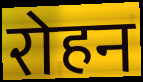
रोहन